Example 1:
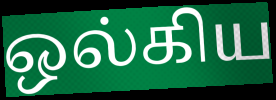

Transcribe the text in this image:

ஒல்கிய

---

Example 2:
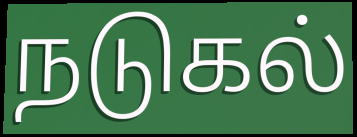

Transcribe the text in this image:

நடுகல்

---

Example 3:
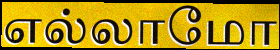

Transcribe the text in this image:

எல்லாமோ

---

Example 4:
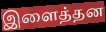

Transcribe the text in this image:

இளைத்தன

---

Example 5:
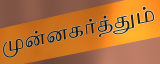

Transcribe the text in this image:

முன்னகர்த்தும்